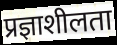
प्रज्ञाशीलता